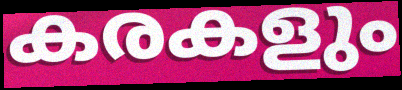
കരകളും